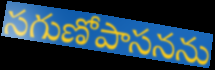
సగుణోపాసనను